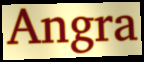
Angra